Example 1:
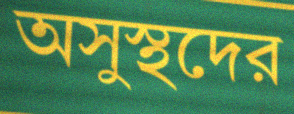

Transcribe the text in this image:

অসুস্থদের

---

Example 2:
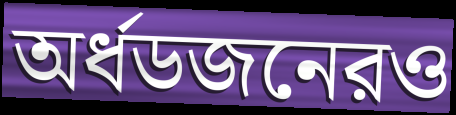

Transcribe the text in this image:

অর্ধডজনেরও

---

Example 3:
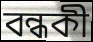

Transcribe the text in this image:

বন্ধকী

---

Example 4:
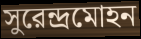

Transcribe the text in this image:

সুরেন্দ্রমোহন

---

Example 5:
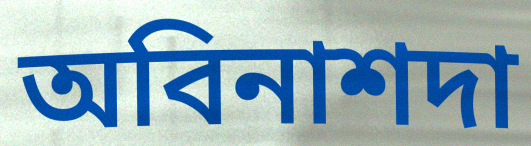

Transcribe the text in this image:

অবিনাশদা